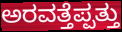
ಅರವತ್ತೆಪ್ಪತ್ತು